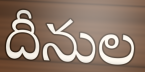
దీనుల